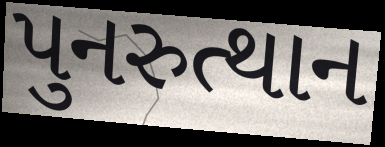
પુનરુત્થાન